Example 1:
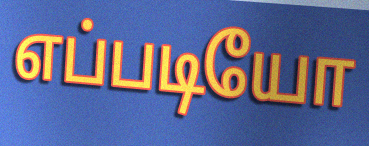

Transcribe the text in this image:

எப்படியோ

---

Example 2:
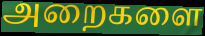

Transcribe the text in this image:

அறைகளை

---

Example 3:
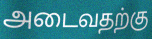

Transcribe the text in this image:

அடைவதற்கு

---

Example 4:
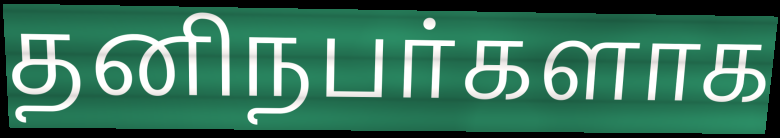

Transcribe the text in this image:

தனிநபர்களாக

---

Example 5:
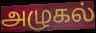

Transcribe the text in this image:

அழுகல்